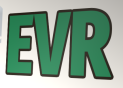
EVR